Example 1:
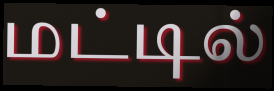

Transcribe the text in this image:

மட்டில்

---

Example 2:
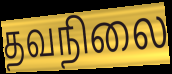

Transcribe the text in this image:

தவநிலை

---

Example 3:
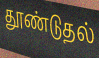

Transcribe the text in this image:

தூண்டுதல்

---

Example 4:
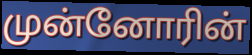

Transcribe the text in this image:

முன்னோரின்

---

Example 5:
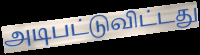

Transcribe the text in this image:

அடிபட்டுவிட்டது